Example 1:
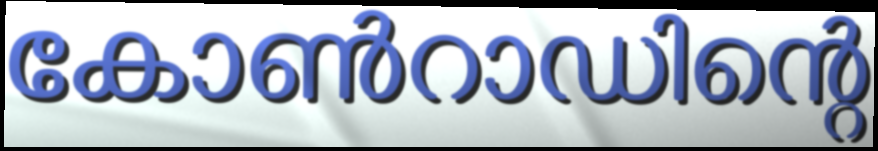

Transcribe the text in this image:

കോൺറാഡിന്റെ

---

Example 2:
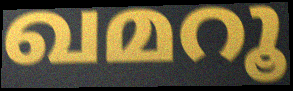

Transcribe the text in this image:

ഖമറൂ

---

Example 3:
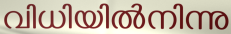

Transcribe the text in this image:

വിധിയിൽനിന്നു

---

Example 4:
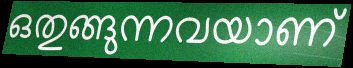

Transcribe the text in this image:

ഒതുങ്ങുന്നവയാണ്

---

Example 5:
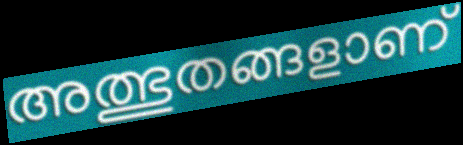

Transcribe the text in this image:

അത്ഭുതങ്ങളാണ്